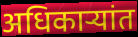
अधिकाऱ्यांत